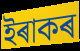
ইৰাকৰ